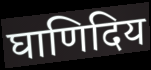
घाणिदिय